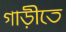
গাড়ীতে